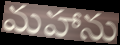
మహాను